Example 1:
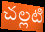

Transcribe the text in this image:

చల్లటి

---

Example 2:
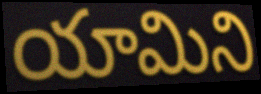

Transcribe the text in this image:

యామిని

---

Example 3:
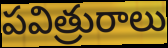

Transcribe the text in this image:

పవిత్రురాలు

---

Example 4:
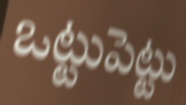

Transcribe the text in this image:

ఒట్టుపెట్టు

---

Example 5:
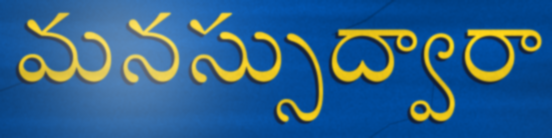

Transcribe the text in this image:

మనస్సుద్వారా